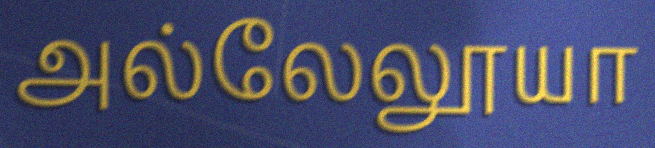
அல்லேலூயா